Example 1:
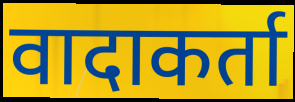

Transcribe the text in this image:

वादाकर्ता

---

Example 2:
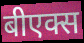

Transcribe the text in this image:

बीएक्स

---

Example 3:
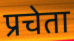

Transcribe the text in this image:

प्रचेता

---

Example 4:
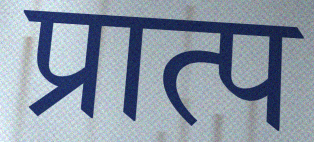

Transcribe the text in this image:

प्रात्प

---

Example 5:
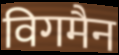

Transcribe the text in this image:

विगमैन